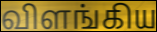
விளங்கிய